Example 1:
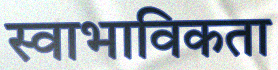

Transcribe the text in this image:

स्वाभाविकता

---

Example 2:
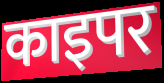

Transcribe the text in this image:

काइपर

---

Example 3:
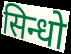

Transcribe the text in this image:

सिन्धो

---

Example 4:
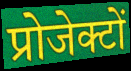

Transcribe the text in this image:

प्रोजेक्टों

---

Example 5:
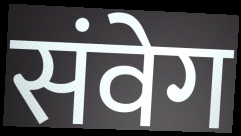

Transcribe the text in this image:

संवेग